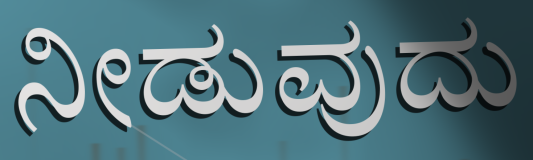
ನೀಡುವುದು